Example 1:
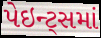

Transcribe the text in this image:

પેઇન્ટ્સમાં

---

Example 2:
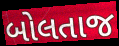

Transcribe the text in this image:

બોલતાજ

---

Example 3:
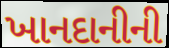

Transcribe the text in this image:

ખાનદાનીની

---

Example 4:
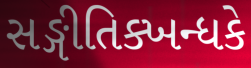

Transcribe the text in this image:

સઙ્ગીતિક્ખન્ધકે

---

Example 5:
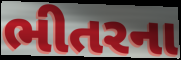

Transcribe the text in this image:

ભીતરના